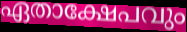
ഏതാക്ഷേപവും